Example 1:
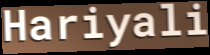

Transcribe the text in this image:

Hariyali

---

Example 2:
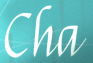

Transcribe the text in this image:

Cha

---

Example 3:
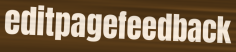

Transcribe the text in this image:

editpagefeedback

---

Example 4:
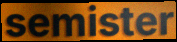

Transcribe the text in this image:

semister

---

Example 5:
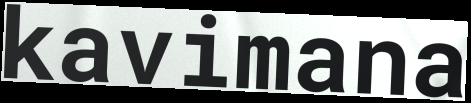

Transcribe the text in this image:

kavimana